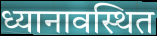
ध्यानावस्थित